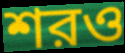
শরও